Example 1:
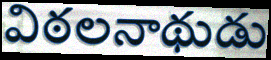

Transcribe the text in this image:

విఠలనాథుడు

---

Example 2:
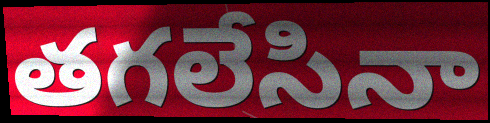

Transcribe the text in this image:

తగలేసినా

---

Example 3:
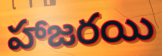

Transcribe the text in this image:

హాజరయి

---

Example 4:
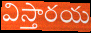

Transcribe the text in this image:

విస్తారయ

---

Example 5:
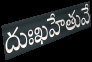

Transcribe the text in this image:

దుఃఖహేతువే